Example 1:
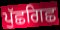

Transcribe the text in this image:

ਪੁੱਛਗਿਛ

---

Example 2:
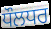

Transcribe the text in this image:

ਧੌਲਧਰ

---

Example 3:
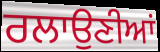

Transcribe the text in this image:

ਰਲਾਉਣੀਆਂ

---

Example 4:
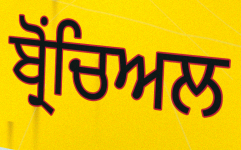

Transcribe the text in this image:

ਬ੍ਰੋਂਚਿਅਲ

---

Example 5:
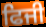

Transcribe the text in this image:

ਫਿਜੀ